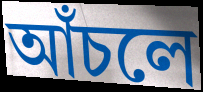
আঁচলে